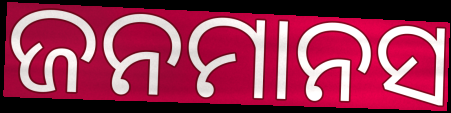
ଜନମାନସ